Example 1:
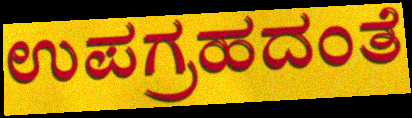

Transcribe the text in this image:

ಉಪಗ್ರಹದಂತೆ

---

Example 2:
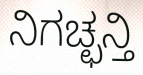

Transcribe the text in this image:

ನಿಗಚ್ಛನ್ತಿ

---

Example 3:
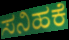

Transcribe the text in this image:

ಸನಿಹಕೆ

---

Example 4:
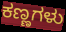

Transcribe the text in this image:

ಕಣ್ಣಗಳು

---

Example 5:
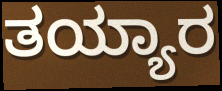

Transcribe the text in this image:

ತಯ್ಯಾರ